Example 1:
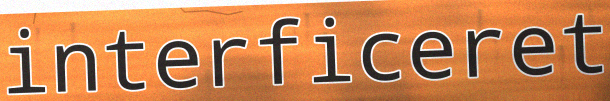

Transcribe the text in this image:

interficeret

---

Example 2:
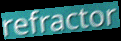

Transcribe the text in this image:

refractor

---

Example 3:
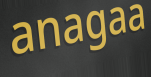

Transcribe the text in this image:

anagaa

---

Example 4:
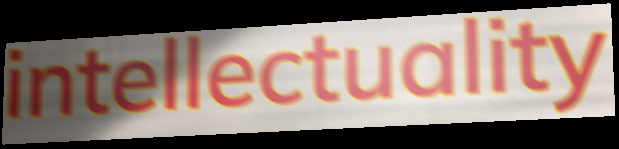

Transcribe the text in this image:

intellectuality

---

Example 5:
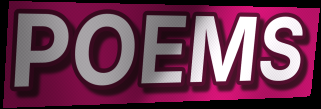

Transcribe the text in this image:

POEMS